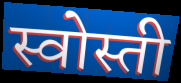
स्वोस्ती